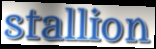
stallion